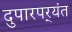
दुपारपर्यंत